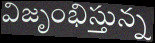
విజృంభిస్తున్న